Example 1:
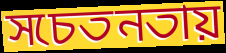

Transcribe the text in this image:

সচেতনতায়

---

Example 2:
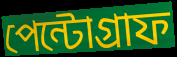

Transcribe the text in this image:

পেন্টোগ্রাফ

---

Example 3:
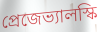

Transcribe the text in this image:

প্রেজেভ্যালস্কি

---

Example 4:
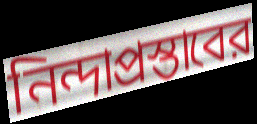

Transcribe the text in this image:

নিন্দাপ্রস্তাবের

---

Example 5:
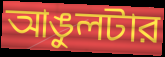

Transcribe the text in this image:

আঙুলটার